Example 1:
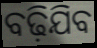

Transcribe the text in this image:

ବଢ଼ିଯିବ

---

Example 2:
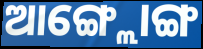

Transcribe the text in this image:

ଆଙ୍ଗ୍ଲୋଙ୍ଗ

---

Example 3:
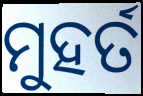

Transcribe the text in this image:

ମୁହର୍ତ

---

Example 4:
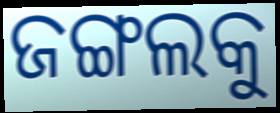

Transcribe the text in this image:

ଜଙ୍ଗଲକୁ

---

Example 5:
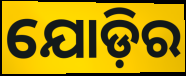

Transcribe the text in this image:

ଯୋଡ଼ିର